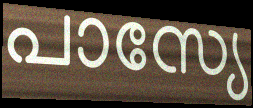
പാസ്യേ